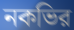
নকভির